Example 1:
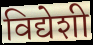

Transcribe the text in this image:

विद्येशी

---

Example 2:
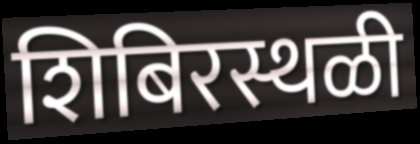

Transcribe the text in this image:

शिबिरस्थळी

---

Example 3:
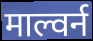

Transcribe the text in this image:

माल्वर्न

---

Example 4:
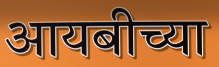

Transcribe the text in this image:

आयबीच्या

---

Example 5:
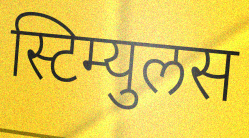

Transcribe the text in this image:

स्टिम्युलस